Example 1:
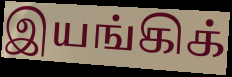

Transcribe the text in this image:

இயங்கிக்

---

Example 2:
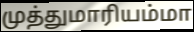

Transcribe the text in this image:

முத்துமாரியம்மா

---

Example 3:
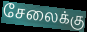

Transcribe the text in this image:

சேலைக்கு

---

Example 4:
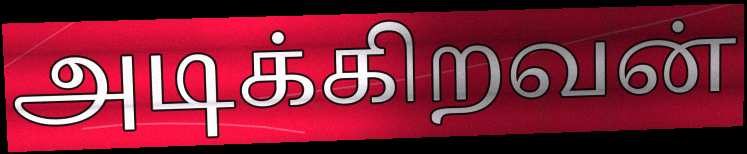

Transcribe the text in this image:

அடிக்கிறவன்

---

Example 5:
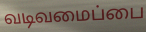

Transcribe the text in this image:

வடிவமைப்பை